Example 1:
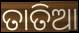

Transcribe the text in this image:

ତାତିଆ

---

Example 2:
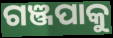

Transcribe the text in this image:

ଗଞ୍ଜପାକୁ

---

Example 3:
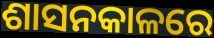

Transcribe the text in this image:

ଶାସନକାଳରେ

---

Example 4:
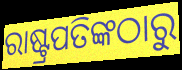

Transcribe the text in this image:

ରାଷ୍ଟ୍ରପତିଙ୍କଠାରୁ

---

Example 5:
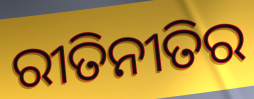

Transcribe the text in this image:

ରୀତିନୀତିର